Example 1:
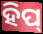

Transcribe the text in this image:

ହିପ୍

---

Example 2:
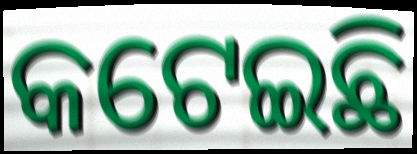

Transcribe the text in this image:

କଟେଇଛି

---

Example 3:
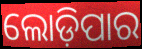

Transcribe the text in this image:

ଲୋଡ଼ିପାର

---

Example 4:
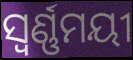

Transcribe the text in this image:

ସ୍ୱର୍ଣ୍ଣମୟୀ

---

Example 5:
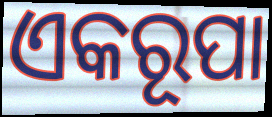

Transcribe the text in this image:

ଏକରୂପା